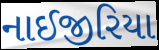
નાઈજીરિયા